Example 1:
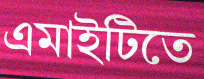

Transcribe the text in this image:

এমাইটিতে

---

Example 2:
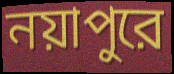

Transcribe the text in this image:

নয়াপুরে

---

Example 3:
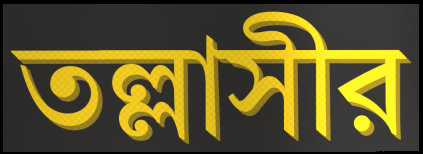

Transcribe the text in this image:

তল্লাসীর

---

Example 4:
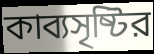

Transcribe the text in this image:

কাব্যসৃষ্টির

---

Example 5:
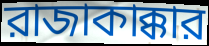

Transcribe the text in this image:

রাজাকাক্কার